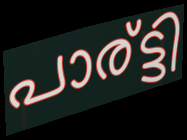
പാര്ട്ടി